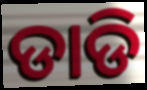
ଡାଡି